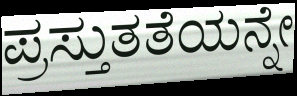
ಪ್ರಸ್ತುತತೆಯನ್ನೇ